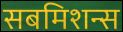
सबमिशन्स